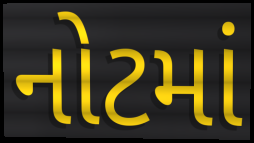
નોટમાં